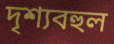
দৃশ্যবহুল